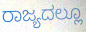
ರಾಜ್ಯದಲ್ಲೂ